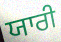
ਯਾਰੀ